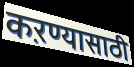
कऱण्यासाठी